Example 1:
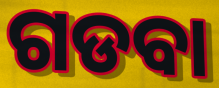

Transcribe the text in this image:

ଗଡବା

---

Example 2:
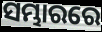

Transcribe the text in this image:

ସମ୍ଭାରରେ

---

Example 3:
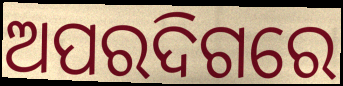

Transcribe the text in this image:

ଅପରଦିଗରେ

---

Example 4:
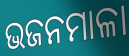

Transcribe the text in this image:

ଭଜନମାଳା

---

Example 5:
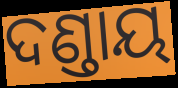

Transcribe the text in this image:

ଦଣ୍ଡାୟ